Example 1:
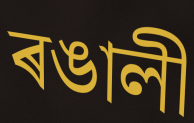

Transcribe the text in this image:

ৰঙালী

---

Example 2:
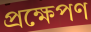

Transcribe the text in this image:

প্ৰক্ষেপণ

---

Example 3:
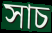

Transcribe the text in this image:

সাচ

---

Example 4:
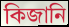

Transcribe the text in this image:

কিজানি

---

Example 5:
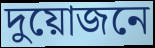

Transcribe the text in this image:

দুয়োজনে